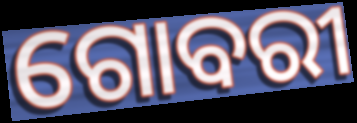
ଗୋବରୀ